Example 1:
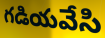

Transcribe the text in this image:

గడియవేసి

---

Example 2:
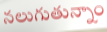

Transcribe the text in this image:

నలుగుతున్నాం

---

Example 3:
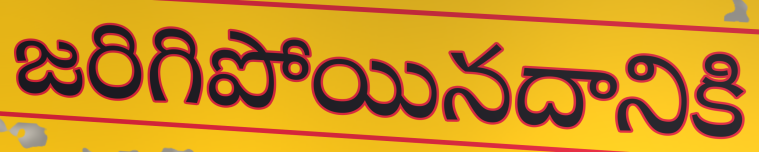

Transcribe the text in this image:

జరిగిపోయినదానికి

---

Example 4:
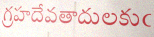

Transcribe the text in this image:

గ్రహదేవతాదులకుఁ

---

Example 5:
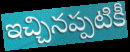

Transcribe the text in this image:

ఇచ్చినప్పటికీ